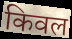
किवल